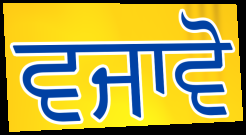
ਵਜਾਵੋ